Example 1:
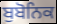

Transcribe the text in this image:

ਬੁਬੋਨਿਕ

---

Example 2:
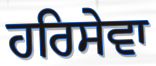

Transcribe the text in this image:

ਹਰਿਸੇਵਾ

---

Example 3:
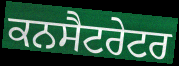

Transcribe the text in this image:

ਕਨਸੈਟਰੇਟਰ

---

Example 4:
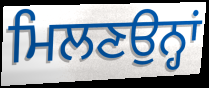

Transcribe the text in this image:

ਮਿਲਣਉਨ੍ਹਾਂ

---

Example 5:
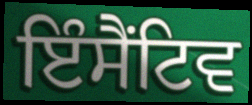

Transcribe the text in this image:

ਇੰਸੈਂਟਿਵ